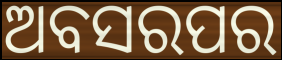
ଅବସରପର